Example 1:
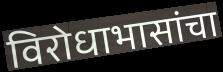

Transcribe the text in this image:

विरोधाभासांचा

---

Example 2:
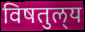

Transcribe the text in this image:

विषतुल्य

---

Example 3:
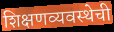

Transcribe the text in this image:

शिक्षणव्यवस्थेची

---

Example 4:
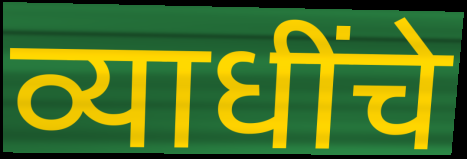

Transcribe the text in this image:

व्याधींचे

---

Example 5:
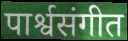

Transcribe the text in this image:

पार्श्वसंगीत